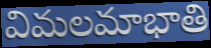
విమలమాభాతి